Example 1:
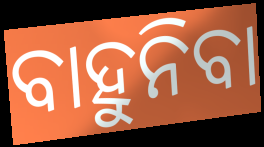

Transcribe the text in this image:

ବାହୁନିବା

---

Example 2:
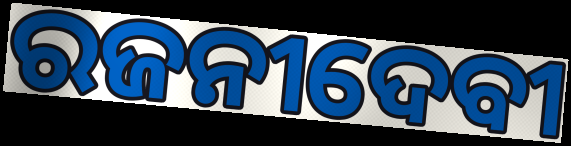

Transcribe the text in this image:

ରଜନୀଦେବୀ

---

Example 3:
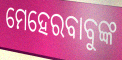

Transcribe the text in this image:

ମେହେରବାବୁଙ୍କ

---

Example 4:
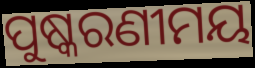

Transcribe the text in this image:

ପୁଷ୍କରଣୀମୟ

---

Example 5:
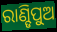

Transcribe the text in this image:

ରାଣ୍ଡିପୁଅ